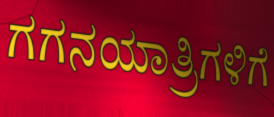
ಗಗನಯಾತ್ರಿಗಳಿಗೆ